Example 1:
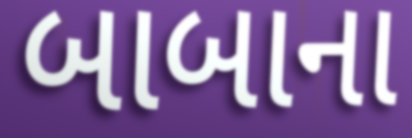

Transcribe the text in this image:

બાબાના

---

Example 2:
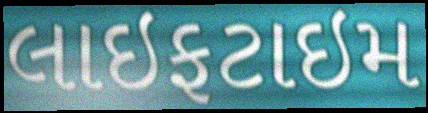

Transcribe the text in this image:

લાઇફટાઇમ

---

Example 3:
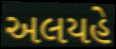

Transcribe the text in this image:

અલયહે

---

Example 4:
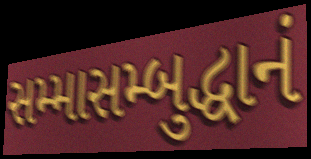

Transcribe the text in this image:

સમ્માસમ્બુદ્ધાનં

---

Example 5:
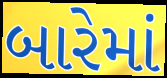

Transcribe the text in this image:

બારેમાં